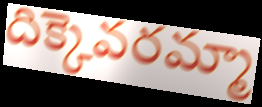
దిక్కెవరమ్మా